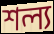
শল্য